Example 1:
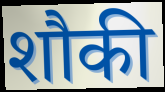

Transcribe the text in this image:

शौकी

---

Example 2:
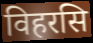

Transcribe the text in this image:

विहरसि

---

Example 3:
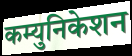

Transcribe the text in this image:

कम्युनिकेशन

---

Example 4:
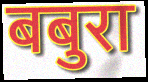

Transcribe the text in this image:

बबुरा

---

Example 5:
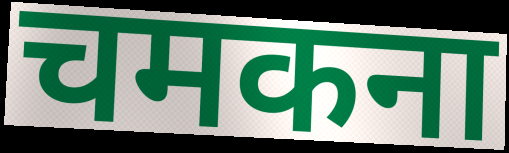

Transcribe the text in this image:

चमकना